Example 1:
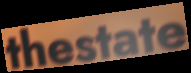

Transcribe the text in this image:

thestate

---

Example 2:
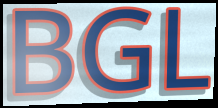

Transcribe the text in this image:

BGL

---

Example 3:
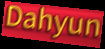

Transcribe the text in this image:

Dahyun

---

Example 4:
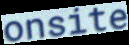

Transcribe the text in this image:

onsite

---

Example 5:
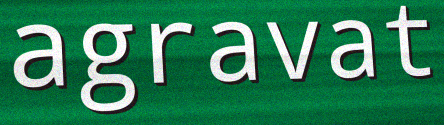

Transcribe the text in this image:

agravat